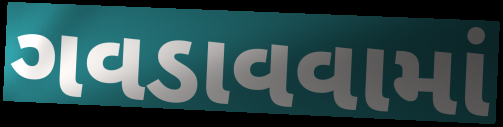
ગવડાવવામાં